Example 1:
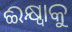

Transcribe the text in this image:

ଈକ୍ଷ୍ୱାକୁ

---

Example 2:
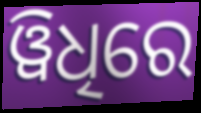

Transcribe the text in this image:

ୱିଧିରେ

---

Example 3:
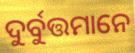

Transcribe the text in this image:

ଦୁର୍ବୁତ୍ତମାନେ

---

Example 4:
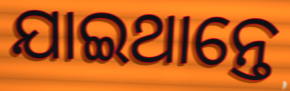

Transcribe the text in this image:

ଯାଇଥାନ୍ତେ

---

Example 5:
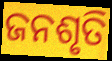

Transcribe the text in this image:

ଜନଶୃତି